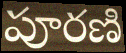
పూరణి